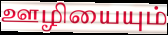
ஊழியையும்